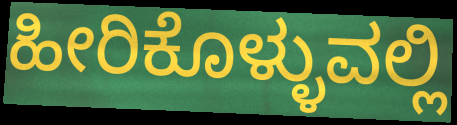
ಹೀರಿಕೊಳ್ಳುವಲ್ಲಿ